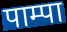
पाम्पा